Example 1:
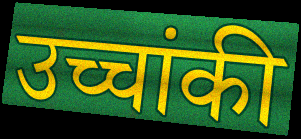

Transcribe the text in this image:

उच्चांकी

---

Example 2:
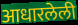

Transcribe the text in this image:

आधारलेली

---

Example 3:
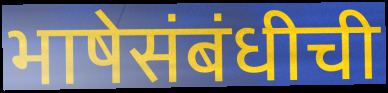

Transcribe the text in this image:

भाषेसंबंधीची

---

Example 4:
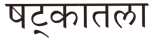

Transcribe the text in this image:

षट्कातला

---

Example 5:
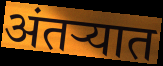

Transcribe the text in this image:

अंतऱ्यात